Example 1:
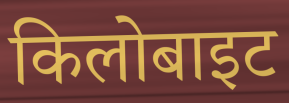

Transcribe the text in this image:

किलोबाइट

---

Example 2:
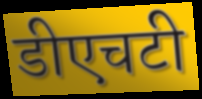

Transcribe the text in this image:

डीएचटी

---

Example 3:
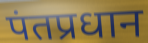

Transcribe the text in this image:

पंतप्रधान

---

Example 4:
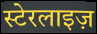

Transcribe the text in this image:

स्टेरलाइज़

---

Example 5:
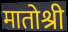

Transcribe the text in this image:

मातोश्री